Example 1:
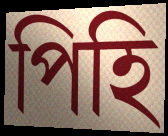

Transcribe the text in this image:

পিহি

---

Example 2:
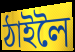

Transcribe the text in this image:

ঠাইলৈ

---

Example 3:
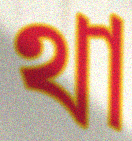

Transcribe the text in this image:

থা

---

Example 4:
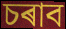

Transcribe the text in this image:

চৰাব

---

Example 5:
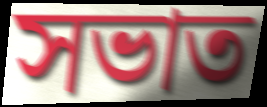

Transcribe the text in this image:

সভাত